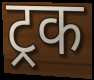
ट्रक